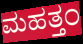
ಮಹತ್ತಂ